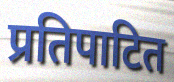
प्रतिपाटित